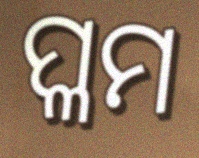
ପ୍ଳମ